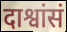
दाश्वांसं